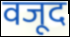
वजूद